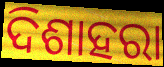
ଦିଶାହରା